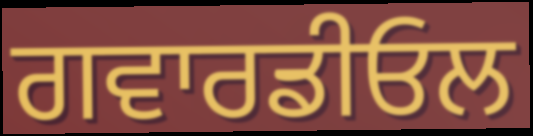
ਗਵਾਰਡੀਓਲ